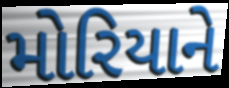
મોરિયાને